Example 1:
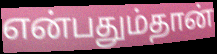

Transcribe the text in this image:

என்பதும்தான்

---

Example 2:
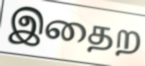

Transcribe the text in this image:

இதைற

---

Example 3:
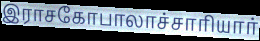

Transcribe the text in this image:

இராசகோபாலாச்சாரியார்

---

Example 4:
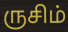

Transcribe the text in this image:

ருசிம்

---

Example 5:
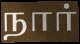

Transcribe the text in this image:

நார்